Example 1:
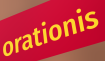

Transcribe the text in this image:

orationis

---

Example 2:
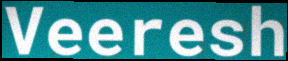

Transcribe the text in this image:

Veeresh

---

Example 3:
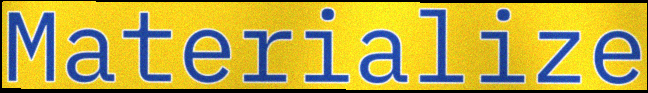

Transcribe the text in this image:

Materialize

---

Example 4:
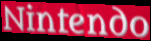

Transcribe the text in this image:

Nintendo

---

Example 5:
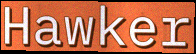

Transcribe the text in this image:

Hawker